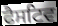
ਫੈਸਟਿਵ